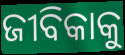
ଜୀବିକାକୁ